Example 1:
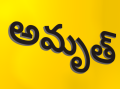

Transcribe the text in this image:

అమృత్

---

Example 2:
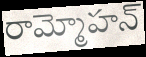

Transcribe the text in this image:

రామ్మోహన్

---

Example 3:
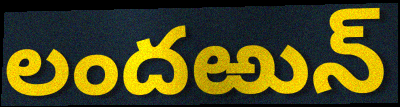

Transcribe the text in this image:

లందఱున్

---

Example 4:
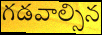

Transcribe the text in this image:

గడవాల్సిన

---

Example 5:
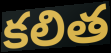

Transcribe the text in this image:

కలిత